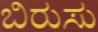
ಬಿರುಸು